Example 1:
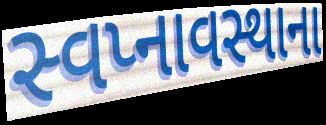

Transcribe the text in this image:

સ્વપ્નાવસ્થાના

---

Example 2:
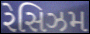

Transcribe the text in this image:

રેસિઝમ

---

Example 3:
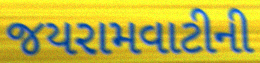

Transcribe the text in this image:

જયરામવાટીની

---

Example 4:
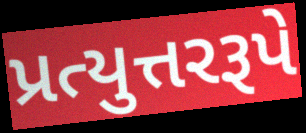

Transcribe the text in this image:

પ્રત્યુત્તરરૂપે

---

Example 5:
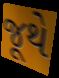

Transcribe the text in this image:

જૂથે